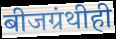
बीजग्रंथीही